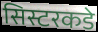
सिस्टरकडे